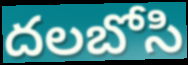
దలబోసి